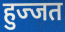
हुज्जत